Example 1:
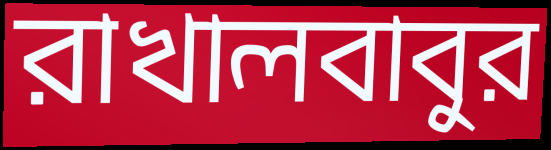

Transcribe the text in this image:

রাখালবাবুর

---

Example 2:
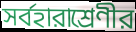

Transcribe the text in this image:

সর্বহারাশ্রেণীর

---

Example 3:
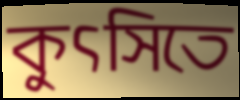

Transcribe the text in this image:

কুৎসিতে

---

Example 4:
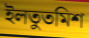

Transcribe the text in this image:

ইলতুতমিশ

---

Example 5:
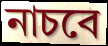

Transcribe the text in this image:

নাচবে